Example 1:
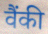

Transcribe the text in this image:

वैंकी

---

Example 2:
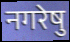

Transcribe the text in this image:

नगरेषु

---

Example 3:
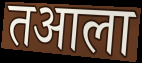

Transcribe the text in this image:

तआला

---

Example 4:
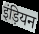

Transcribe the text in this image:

इंड़ियन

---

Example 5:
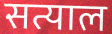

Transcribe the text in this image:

सत्याल